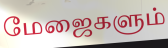
மேஜைகளும்